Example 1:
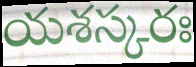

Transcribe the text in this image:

యశస్కరః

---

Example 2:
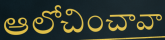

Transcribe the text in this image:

ఆలోచించావా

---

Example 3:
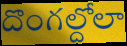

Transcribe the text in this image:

దొంగల్దోలా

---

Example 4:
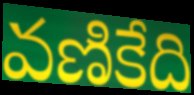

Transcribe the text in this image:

వణికేది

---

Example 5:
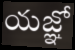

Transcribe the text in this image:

యజ్ఞో